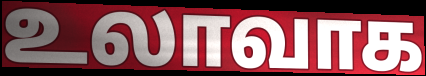
உலாவாக